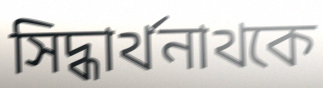
সিদ্ধার্থনাথকে